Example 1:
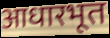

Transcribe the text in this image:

आधारभूत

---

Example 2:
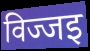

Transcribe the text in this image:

विज्जइ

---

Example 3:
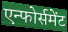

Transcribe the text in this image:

एन्फोर्समेंट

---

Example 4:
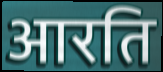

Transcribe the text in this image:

आरति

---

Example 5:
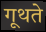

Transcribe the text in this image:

गूथते